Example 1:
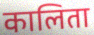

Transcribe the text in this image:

कालिता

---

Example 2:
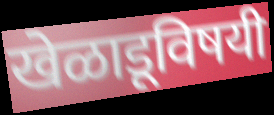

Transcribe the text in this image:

खेळाडूविषयी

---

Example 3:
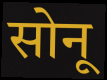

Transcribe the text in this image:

सोनू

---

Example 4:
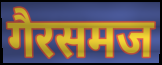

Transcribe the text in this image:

गैरसमज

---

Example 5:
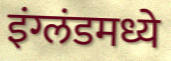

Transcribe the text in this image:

इंग्लंडमध्ये